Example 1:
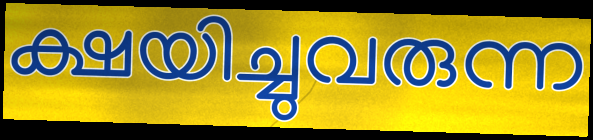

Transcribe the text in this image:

ക്ഷയിച്ചുവരുന്ന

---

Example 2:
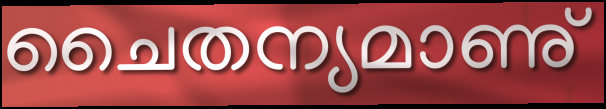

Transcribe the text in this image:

ചൈതന്യമാണു്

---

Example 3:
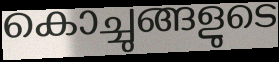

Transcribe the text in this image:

കൊച്ചുങ്ങളുടെ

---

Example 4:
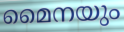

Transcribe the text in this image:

മൈനയും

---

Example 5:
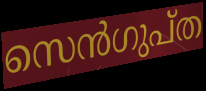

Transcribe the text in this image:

സെൻഗുപ്ത